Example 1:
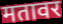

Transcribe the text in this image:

मतावर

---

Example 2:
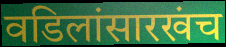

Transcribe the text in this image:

वडिलांसारखंच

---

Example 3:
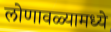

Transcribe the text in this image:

लोणावळ्यामध्ये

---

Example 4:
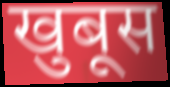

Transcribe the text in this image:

खुबूस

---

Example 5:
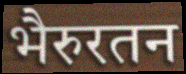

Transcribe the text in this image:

भैरुरतन